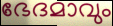
ഭേദമാവും